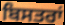
ਬਿਸਤਰਾਂ